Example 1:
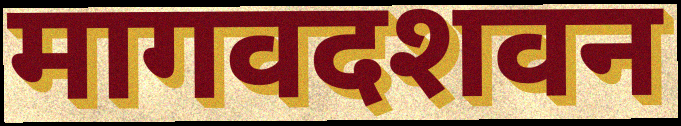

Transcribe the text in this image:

मागवदशवन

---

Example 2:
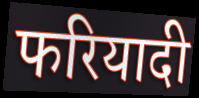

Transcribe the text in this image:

फरियादी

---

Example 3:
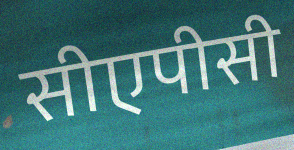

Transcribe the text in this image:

सीएपीसी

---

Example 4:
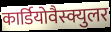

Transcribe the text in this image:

कार्डियोवैस्क्युलर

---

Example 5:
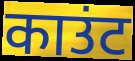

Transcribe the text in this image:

काउंट